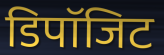
डिपॉजिट